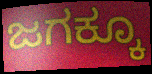
ಜಗಕ್ಕೂ